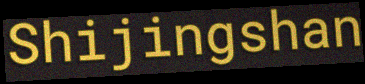
Shijingshan